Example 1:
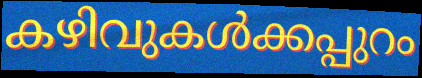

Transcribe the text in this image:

കഴിവുകൾക്കപ്പുറം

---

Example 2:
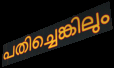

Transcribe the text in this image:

പതിച്ചെങ്കിലും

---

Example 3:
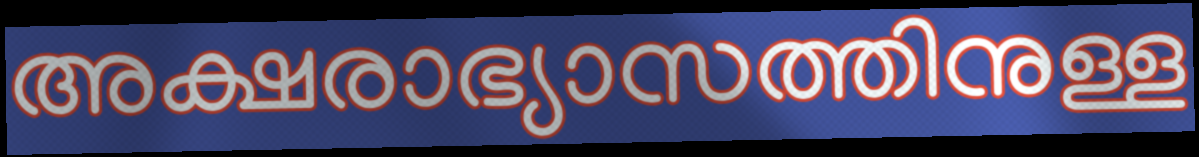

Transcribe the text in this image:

അക്ഷരാഭ്യാസത്തിനുള്ള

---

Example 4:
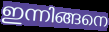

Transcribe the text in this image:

ഇന്നിങ്ങനെ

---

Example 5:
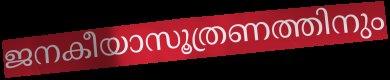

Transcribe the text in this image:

ജനകീയാസൂത്രണത്തിനും